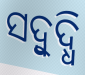
ସଦ୍ବୁଦ୍ଧି